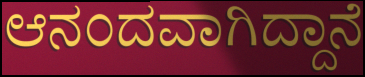
ಆನಂದವಾಗಿದ್ದಾನೆ